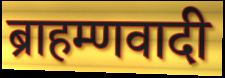
ब्राहम्णवादी